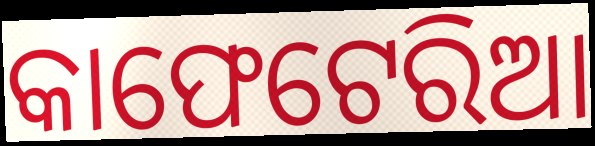
କାଫେଟେରିଆ